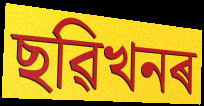
ছৱিখনৰ